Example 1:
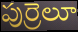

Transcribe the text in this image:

పుర్రెలూ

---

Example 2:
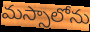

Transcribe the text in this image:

మస్సాలోను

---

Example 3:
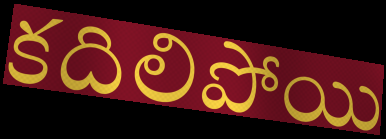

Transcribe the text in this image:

కదిలిపోయి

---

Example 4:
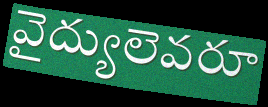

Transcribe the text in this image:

వైద్యులెవరూ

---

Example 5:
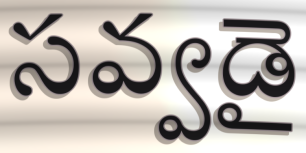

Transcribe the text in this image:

సవ్వడై